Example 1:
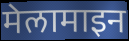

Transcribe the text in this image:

मेलामाइन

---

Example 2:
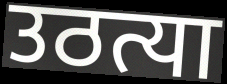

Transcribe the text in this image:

उठत्या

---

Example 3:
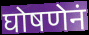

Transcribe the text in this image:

घोषणेनं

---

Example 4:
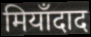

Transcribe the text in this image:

मियाँदाद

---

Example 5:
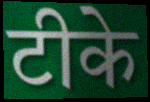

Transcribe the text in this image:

टीके